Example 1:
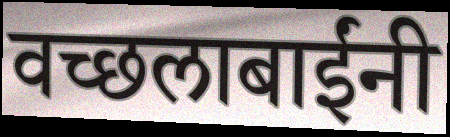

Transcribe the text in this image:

वच्छलाबाईंनी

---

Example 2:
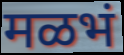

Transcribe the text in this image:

मळभं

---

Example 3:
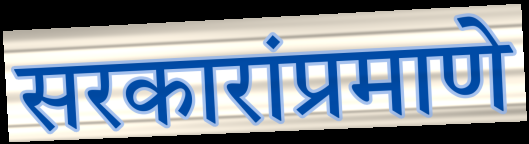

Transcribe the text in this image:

सरकारांप्रमाणे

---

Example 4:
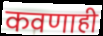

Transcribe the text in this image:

कवणाही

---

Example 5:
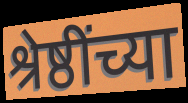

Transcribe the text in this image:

श्रेष्ठींच्या